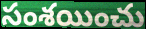
సంశయించు